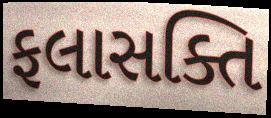
ફલાસક્તિ